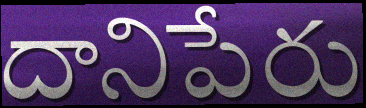
దానిపేరు